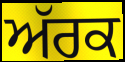
ਅੱਰਕ